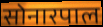
सोनारपाल